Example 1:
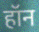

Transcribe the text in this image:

हॉन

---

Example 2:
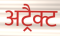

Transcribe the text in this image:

अट्रैक्ट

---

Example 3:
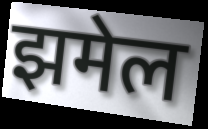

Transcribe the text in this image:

झमेल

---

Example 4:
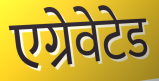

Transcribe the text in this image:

एग्रेवेटेड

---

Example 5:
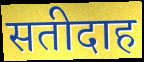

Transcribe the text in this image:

सतीदाह